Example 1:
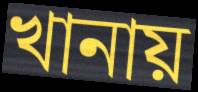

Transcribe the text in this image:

খানায়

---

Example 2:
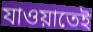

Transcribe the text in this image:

যাওয়াতেই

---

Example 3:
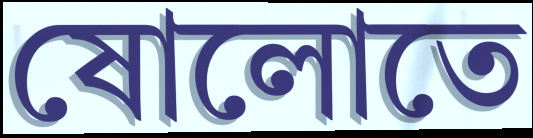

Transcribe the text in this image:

ষোলোতে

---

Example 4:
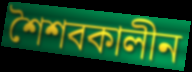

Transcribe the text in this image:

শৈশবকালীন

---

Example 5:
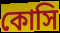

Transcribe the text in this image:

কোসি